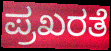
ಪ್ರಖರತೆ